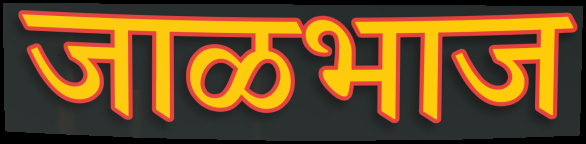
जाळभाज